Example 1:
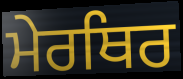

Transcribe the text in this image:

ਮੇਰਥਿਰ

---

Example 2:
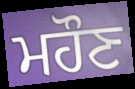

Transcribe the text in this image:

ਮਹੌਣ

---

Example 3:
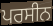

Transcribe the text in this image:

ਪਰਸੀਨ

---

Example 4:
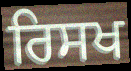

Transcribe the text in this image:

ਰਿਸਖ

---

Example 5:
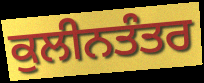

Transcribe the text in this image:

ਕੁਲੀਨਤੰਤਰ